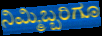
ನಿಮ್ಮಿಬ್ಬರಿಗೂ